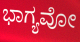
ಭಾಗ್ಯವೋ